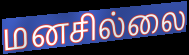
மனசில்லை